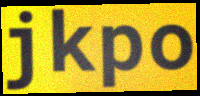
jkpo